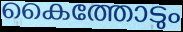
കൈത്തോടും